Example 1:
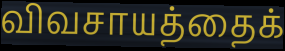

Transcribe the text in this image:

விவசாயத்தைக்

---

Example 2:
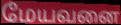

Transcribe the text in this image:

மேயவனை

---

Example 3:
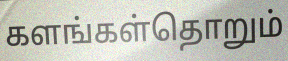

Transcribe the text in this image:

களங்கள்தொறும்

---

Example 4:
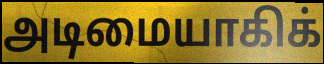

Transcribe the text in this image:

அடிமையாகிக்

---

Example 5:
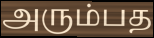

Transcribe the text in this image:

அரும்பத